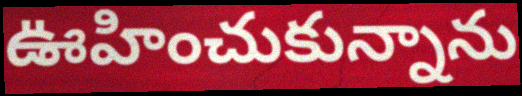
ఊహించుకున్నాను